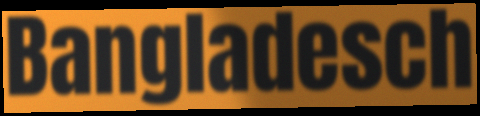
Bangladesch